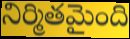
నిర్మితమైంది